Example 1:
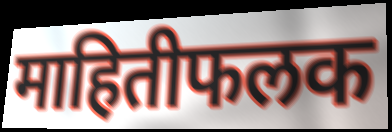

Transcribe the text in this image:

माहितीफलक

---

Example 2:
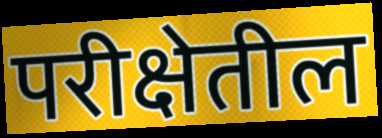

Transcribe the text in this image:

परीक्षेतील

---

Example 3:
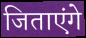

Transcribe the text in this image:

जिताएंगे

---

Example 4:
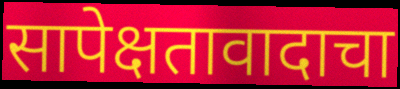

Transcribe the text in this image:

सापेक्षतावादाचा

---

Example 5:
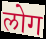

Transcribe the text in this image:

लोग